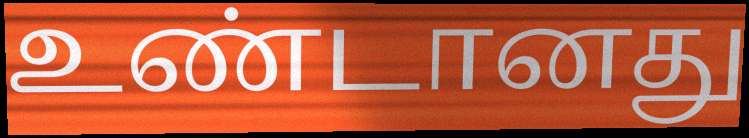
உண்டானது